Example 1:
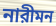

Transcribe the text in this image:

নারীমন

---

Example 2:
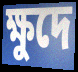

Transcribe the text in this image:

ক্ষুদে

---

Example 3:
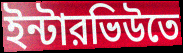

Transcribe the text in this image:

ইন্টারভিউতে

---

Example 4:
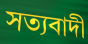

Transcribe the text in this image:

সত্যবাদী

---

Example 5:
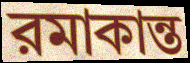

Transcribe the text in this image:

রমাকান্ত